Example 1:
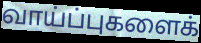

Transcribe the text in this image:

வாய்ப்புகளைக்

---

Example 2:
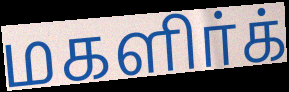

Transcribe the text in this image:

மகளிர்க்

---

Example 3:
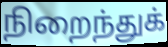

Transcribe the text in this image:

நிறைந்துக்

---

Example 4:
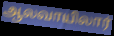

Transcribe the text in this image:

ஆலவாயிலார்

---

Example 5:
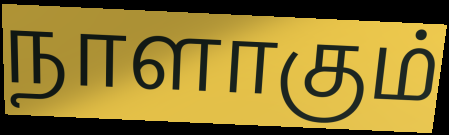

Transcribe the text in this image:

நாளாகும்